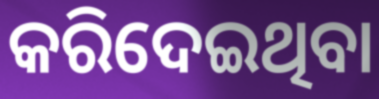
କରିଦେଇଥିବା